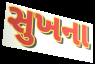
સુખના